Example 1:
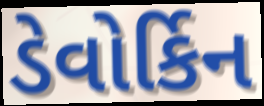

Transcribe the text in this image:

ડેવોર્કિન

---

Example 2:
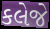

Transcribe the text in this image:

કલેજે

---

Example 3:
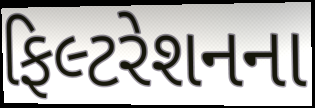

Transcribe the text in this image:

ફિલ્ટરેશનના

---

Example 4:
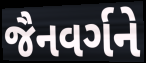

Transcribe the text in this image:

જૈનવર્ગને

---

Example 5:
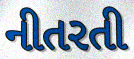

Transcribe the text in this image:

નીતરતી